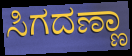
ಸಿಗದಣ್ಣಾ